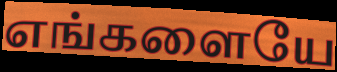
எங்களையே